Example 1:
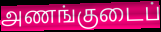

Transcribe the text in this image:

அணங்குடைப்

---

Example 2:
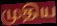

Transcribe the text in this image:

முதிய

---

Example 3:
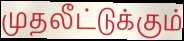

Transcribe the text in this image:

முதலீட்டுக்கும்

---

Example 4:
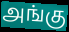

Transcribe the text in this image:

அங்கு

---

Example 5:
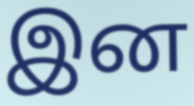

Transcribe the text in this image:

இன